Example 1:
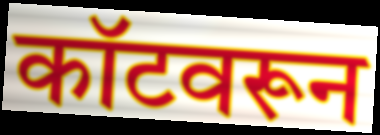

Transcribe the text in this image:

कॉटवरून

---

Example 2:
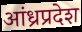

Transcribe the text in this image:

आंध्रप्रदेश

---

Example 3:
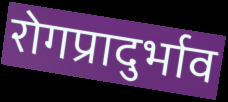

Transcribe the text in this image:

रोगप्रादुर्भाव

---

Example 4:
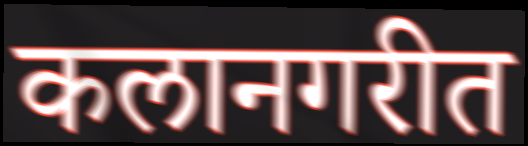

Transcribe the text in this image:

कलानगरीत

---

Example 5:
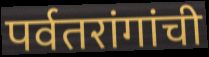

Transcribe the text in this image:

पर्वतरांगांची